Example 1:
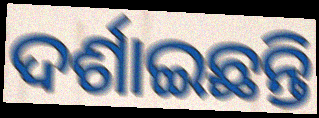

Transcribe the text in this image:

ଦର୍ଶାଇଛନ୍ତି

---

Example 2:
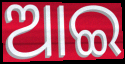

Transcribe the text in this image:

ଆଇ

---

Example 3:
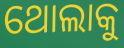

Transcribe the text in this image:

ଥୋଲାକୁ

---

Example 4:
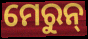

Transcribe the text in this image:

ମେରୁନ୍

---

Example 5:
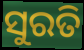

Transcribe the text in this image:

ସୁରତି